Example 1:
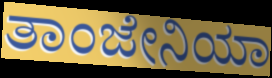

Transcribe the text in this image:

ತಾಂಜೇನಿಯಾ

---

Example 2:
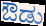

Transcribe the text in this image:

ಔಡು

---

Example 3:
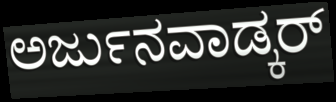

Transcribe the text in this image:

ಅರ್ಜುನವಾಡ್ಕರ್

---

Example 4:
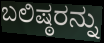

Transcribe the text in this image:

ಬಲಿಷ್ಠರನ್ನು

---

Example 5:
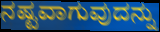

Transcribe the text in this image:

ನಷ್ಟವಾಗುವುದನ್ನು